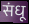
संधू